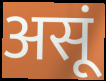
असूं